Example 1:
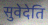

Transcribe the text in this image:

सुवेदेति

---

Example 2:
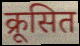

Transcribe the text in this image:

क्रूसित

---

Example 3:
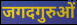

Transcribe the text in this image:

जगदगुरुओं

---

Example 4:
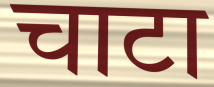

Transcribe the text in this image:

चाटा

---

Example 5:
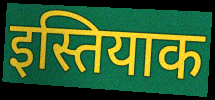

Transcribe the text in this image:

इस्तियाक